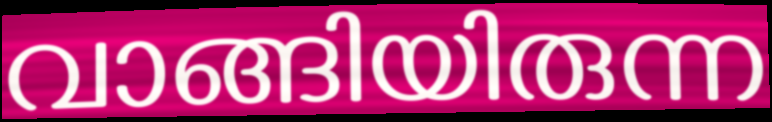
വാങ്ങിയിരുന്ന